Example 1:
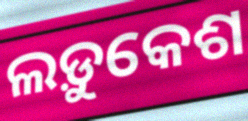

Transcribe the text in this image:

ଲଡ଼ୁକେଶ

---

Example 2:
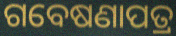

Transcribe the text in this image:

ଗବେଷଣାପତ୍ର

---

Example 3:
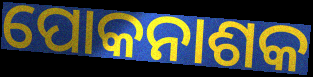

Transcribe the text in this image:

ପୋକନାଶକ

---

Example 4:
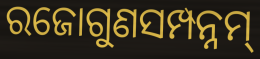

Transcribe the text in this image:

ରଜୋଗୁଣସମ୍ପନ୍ନମ୍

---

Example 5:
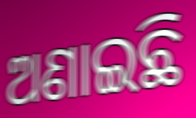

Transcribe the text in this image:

ଅଣାଇଛି